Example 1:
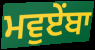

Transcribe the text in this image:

ਮਵੁਏਂਬਾ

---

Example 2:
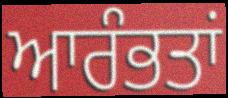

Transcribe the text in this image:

ਆਰੰਭਤਾਂ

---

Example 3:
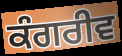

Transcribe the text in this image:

ਕੰਗਰੀਵ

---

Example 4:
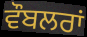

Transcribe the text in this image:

ਵੌਬਲਰਾਂ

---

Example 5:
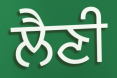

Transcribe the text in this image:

ਲੈਣੀ